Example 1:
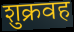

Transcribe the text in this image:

शुक्रवह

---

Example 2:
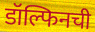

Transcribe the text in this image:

डॉल्फिनची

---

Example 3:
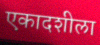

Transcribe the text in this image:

एकादशीला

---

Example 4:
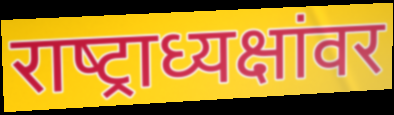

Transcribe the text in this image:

राष्ट्राध्यक्षांवर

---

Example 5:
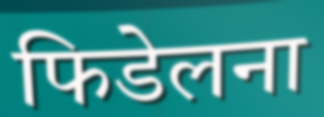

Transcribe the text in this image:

फिडेलना